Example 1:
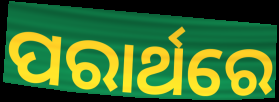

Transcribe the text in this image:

ପରାର୍ଥରେ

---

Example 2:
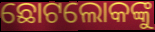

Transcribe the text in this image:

ଛୋଟଲୋକଙ୍କୁ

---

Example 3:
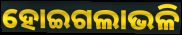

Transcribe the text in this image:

ହୋଇଗଲାଭଳି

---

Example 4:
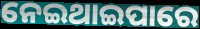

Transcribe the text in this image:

ନେଇଥାଇପାରେ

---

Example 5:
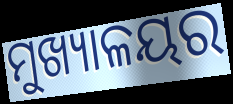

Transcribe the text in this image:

ମୁଖ୍ୟାଳୟର